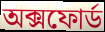
অক্সফোর্ড